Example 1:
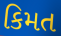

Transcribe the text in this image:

કિમત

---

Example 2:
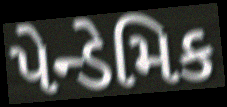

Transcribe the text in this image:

પેન્ડેમિક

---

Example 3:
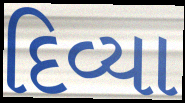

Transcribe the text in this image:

દિવ્યા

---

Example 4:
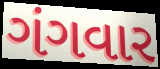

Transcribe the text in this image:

ગંગવાર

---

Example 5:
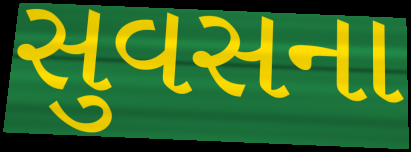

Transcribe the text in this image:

સુવસના